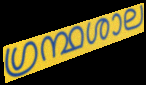
ഗ്രന്ഥശാല